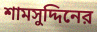
শামসুদ্দিনের